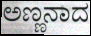
ಅಣ್ಣನಾದ